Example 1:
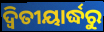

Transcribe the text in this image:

ଦ୍ଵିତୀୟାର୍ଦ୍ଧରୁ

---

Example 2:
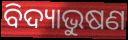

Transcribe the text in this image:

ବିଦ୍ୟାଭୁଷଣ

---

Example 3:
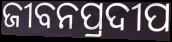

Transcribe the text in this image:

ଜୀବନପ୍ରଦୀପ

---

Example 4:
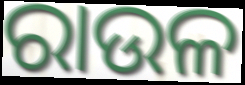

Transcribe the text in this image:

ରାଉଳ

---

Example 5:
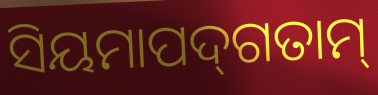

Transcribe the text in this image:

ସିୟମାପଦ୍‌ଗତାମ୍